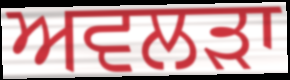
ਅਵਲੜਾ